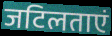
जटिलताएं